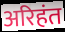
अरिहंत